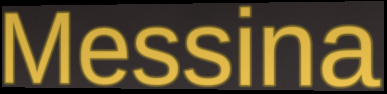
Messina